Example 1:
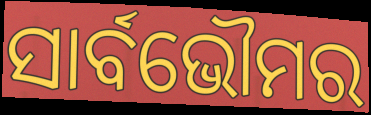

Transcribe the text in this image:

ସାର୍ବଭୌମର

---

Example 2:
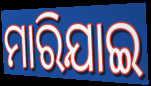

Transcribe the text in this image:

ମାରିଯାଇ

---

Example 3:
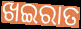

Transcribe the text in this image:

ଖଇରାତ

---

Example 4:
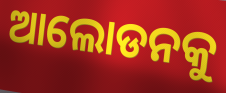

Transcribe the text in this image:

ଆଲୋଡନକୁ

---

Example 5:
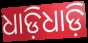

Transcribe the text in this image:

ଧାଡ଼ିଧାଡ଼ି